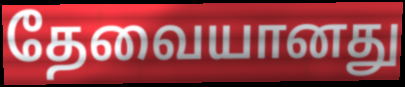
தேவையானது